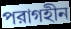
পরাগহীন